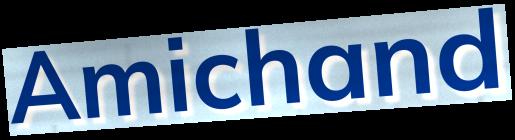
Amichand